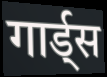
गार्ड्स